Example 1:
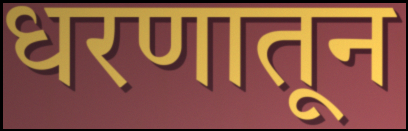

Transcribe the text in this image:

धरणातून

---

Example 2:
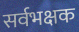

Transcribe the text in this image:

सर्वभक्षक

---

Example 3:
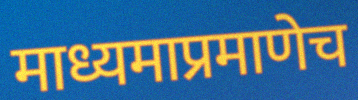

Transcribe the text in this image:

माध्यमाप्रमाणेच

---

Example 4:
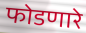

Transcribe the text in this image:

फोडणारे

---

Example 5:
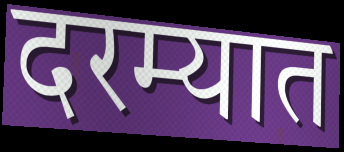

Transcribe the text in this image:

दरम्यात